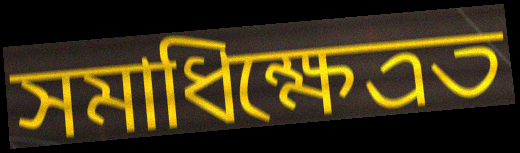
সমাধিক্ষেত্ৰত